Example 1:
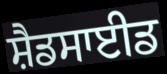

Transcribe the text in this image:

ਸ਼ੈਡਸਾਈਡ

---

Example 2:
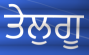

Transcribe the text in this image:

ਤੇਲੁਗੂ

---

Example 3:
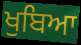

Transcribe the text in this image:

ਖੁਬਿਆ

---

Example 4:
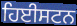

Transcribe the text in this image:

ਹਿਈਸਟਨ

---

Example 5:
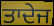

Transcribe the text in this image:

ਤਾਦੇਜ